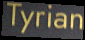
Tyrian